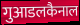
गुआडलकैनाल